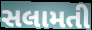
સલામતી